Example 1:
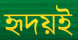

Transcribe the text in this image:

হৃদয়ই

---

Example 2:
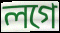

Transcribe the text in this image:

লগে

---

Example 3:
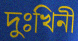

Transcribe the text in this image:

দুঃখিনী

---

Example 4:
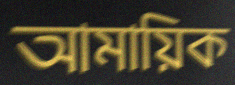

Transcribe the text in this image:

আমায়িক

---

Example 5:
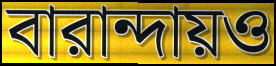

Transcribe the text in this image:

বারান্দায়ও